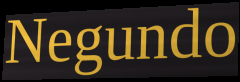
Negundo